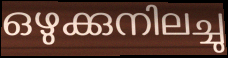
ഒഴുക്കുനിലച്ചു